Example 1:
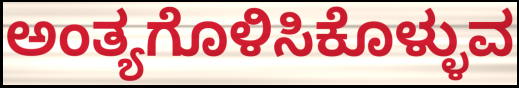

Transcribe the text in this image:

ಅಂತ್ಯಗೊಳಿಸಿಕೊಳ್ಳುವ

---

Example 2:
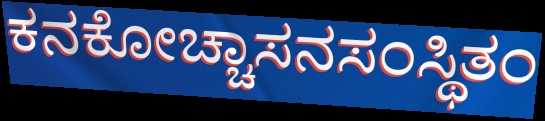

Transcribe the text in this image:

ಕನಕೋಚ್ಚಾಸನಸಂಸ್ಥಿತಂ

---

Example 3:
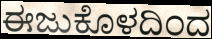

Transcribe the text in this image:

ಈಜುಕೊಳದಿಂದ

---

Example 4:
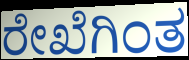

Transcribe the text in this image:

ರೇಖೆಗಿಂತ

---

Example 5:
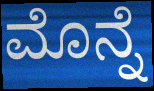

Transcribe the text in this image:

ಮೊನ್ನೆ